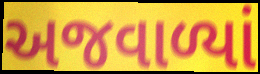
અજવાળ્યાં